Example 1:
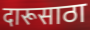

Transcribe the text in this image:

दारूसाठा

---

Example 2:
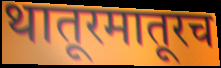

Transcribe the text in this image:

थातूरमातूरच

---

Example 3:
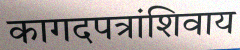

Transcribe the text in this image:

कागदपत्रांशिवाय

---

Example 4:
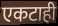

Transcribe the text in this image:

एकटाही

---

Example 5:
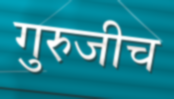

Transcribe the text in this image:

गुरुजीच